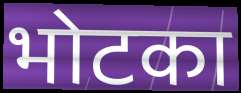
भोटका